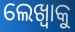
ଲେଖ୍ବାକୁ